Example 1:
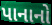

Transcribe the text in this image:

પાનાનો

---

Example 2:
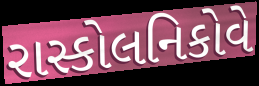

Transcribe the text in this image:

રાસ્કોલનિકોવે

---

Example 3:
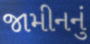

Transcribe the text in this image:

જામીનનું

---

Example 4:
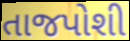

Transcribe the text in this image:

તાજપોશી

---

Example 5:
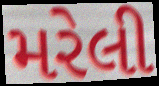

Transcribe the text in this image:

મરેલી